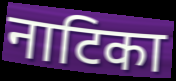
नाटिका